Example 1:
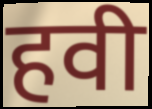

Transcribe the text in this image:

हवी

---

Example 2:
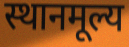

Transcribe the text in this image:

स्थानमूल्य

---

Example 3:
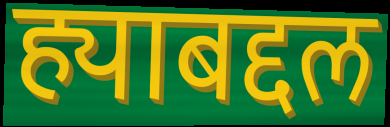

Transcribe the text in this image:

ह्याबद्दल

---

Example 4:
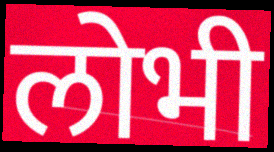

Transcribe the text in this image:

लोभी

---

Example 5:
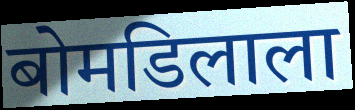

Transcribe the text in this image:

बोमडिलाला